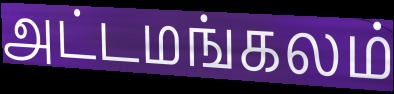
அட்டமங்கலம்